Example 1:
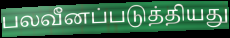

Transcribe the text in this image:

பலவீனப்படுத்தியது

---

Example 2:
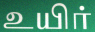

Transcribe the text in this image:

உயிர்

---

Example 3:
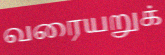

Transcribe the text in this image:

வரையறுக்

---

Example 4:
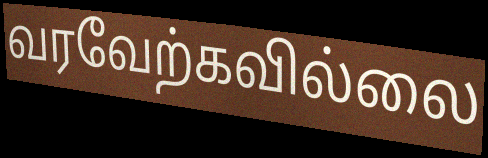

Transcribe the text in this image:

வரவேற்கவில்லை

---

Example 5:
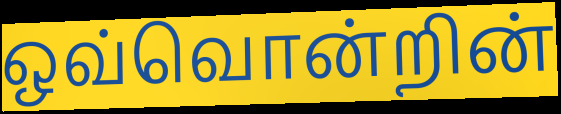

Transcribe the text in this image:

ஒவ்வொன்றின்